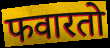
फवारतो